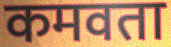
कमवता